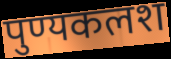
पुण्यकलश